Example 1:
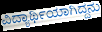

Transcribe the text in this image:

ವಿದ್ಯಾರ್ಥಿಯಾಗಿದ್ದನು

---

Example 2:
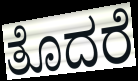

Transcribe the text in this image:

ತೊದರೆ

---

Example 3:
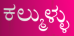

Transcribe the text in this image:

ಕಲ್ಮುಳ್ಳು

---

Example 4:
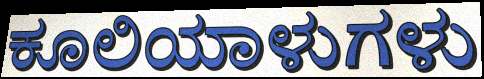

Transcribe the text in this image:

ಕೂಲಿಯಾಳುಗಳು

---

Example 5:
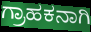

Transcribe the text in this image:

ಗ್ರಾಹಕನಾಗಿ